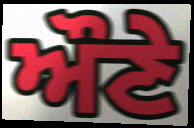
ਔਣੇ